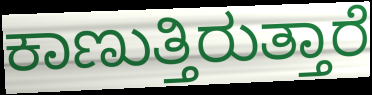
ಕಾಣುತ್ತಿರುತ್ತಾರೆ